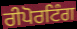
ਰੀਪੋਰਟਿੰਗ